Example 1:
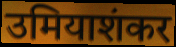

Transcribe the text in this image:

उमियाशंकर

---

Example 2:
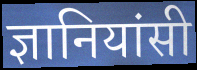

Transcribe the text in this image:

ज्ञानियांसी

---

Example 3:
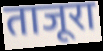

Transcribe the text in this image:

ताजूरा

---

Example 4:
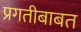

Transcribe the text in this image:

प्रगतीबाबत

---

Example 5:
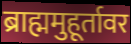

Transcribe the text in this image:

ब्राह्ममुहूर्तावर